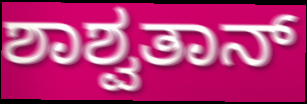
ಶಾಶ್ವತಾನ್